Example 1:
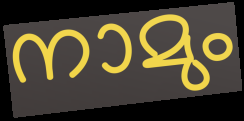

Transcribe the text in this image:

നാമും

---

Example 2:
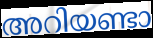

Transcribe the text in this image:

അറിയണ്ടാ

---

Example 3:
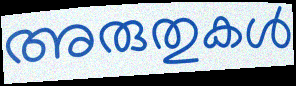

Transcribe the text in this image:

അരുതുകൾ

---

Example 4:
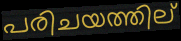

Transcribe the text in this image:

പരിചയത്തില്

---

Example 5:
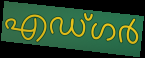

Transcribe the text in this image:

എഡ്ഗർ